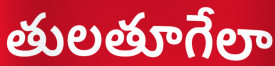
తులతూగేలా